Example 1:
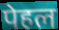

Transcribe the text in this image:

पेहल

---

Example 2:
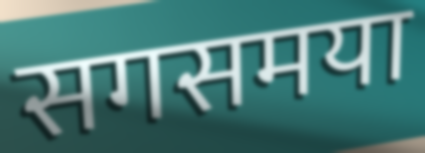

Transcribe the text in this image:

सगसमया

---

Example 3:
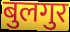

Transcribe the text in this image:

बुलगुर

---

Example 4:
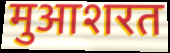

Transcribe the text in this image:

मुआशरत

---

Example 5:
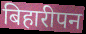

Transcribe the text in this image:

बिहारीपन